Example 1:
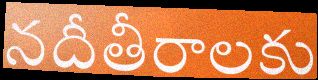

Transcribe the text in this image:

నదీతీరాలకు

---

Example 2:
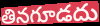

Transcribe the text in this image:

తినగూడదు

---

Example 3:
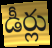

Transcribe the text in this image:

డీర్లు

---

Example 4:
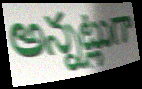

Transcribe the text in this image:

అన్నట్లుగా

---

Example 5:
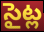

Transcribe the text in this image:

సైట్ల